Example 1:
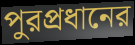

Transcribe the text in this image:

পুরপ্রধানের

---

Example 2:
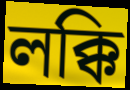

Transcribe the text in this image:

লক্কি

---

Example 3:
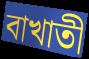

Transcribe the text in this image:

বাখাতী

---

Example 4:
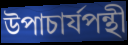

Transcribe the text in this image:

উপাচার্যপন্থী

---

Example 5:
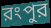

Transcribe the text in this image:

রংপুর